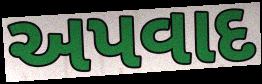
અપવાદ